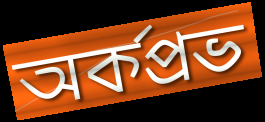
অর্কপ্রভ